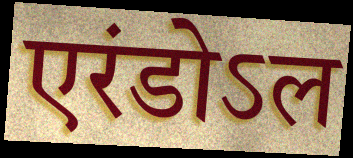
एरंडोऽल